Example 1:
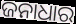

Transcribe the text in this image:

ଜନାଧାର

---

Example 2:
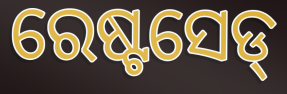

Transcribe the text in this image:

ରେଷ୍ଟସେଡ୍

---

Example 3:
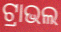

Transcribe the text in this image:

ଟ୍ରାଭଲ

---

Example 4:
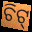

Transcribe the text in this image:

ଚିଟ୍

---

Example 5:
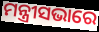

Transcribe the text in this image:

ମନ୍ତ୍ରୀସଭାରେ